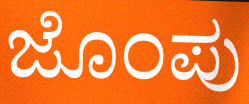
ಜೊಂಪು